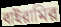
বাইরামির